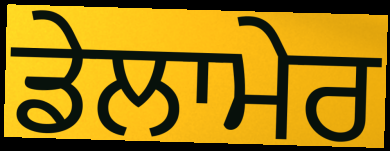
ਡੇਲਾਮੇਰ